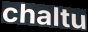
chaltu